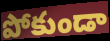
పోకుండా